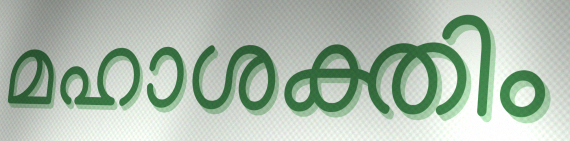
മഹാശക്തിം